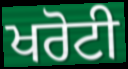
ਖਰੋਟੀ